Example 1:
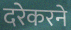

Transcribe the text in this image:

दरेकरने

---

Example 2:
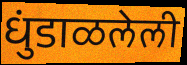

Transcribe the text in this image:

धुंडाळलेली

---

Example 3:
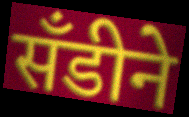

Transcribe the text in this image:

सॅंडीने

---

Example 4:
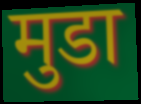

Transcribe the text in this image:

मुडा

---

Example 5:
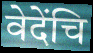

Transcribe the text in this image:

वेदेंचि